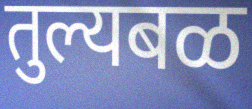
तुल्यबळ